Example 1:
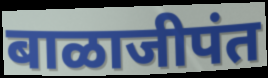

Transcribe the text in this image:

बाळाजीपंत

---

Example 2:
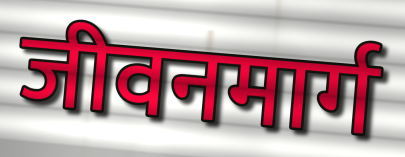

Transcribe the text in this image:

जीवनमार्ग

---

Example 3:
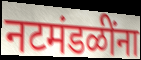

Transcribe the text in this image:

नटमंडळींना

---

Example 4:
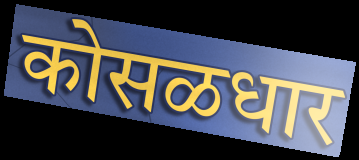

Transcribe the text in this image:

कोसळधार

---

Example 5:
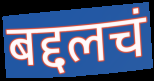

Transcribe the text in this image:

बद्दलचं